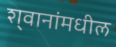
श्वानांमधील